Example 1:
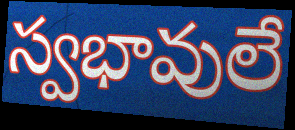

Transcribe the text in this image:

స్వభావులే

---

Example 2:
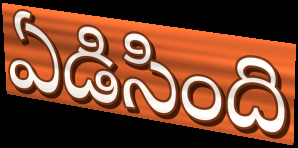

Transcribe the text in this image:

ఏడిసింది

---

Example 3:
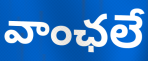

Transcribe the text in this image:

వాంఛలే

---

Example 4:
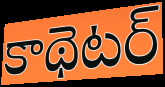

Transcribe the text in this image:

కాథెటర్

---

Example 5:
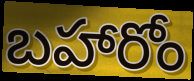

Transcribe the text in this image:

బహారోం